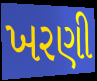
ખરણી